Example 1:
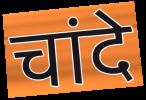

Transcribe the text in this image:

चांदे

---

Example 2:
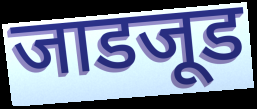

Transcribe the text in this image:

जाडजूड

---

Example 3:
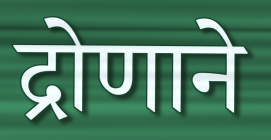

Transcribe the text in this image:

द्रोणाने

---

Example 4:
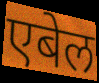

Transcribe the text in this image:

एबेल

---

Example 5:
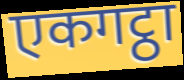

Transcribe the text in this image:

एकगट्ठा